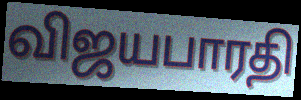
விஜயபாரதி